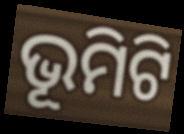
ଭୂମିଟି